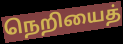
நெறியைத்